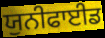
ਯੁਨੀਫਾਈਡ